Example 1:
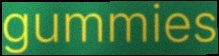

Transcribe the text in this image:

gummies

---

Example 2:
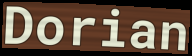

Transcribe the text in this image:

Dorian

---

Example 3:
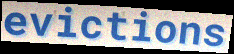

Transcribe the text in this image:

evictions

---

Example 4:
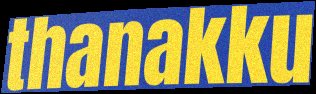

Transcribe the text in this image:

thanakku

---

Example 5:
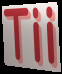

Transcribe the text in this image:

Tii